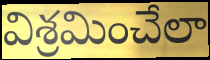
విశ్రమించేలా